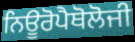
ਨਿਊਰੋਪੈਥੋਲੋਜੀ